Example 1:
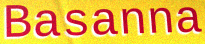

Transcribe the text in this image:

Basanna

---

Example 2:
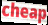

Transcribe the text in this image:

cheap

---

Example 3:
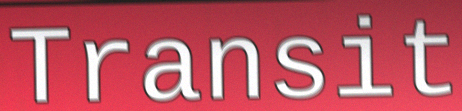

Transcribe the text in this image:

Transit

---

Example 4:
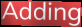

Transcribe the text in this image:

Adding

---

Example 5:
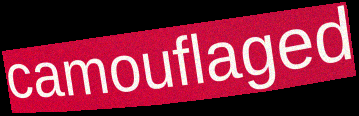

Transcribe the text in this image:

camouflaged